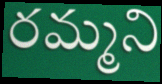
రమ్మని